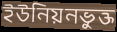
ইউনিয়নভুক্ত